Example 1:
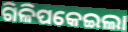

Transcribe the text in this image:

ଗିଳିପକେଇଲା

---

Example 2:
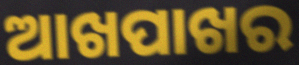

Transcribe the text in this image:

ଆଖପାଖର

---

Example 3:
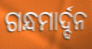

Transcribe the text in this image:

ଗନ୍ଧମାର୍ଦ୍ଦନ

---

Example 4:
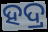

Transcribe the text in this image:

ହଦ୍ର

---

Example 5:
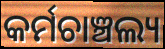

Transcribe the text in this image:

କର୍ମଚାଞ୍ଚଲ୍ୟ